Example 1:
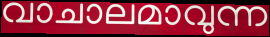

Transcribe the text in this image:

വാചാലമാവുന്ന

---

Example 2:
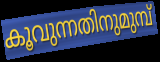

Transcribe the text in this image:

കൂവുന്നതിനുമുമ്പ്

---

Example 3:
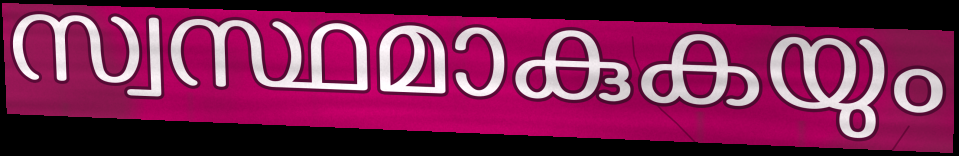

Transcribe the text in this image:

സ്വസ്ഥമാകുകയും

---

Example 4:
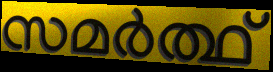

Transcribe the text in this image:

സമർത്ഥ്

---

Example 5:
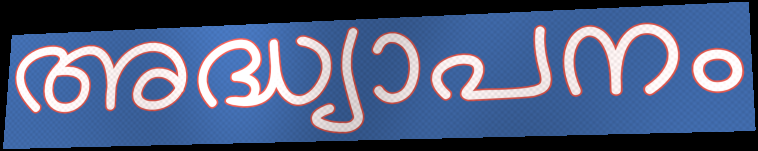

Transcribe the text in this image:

അദ്ധ്യാപനം